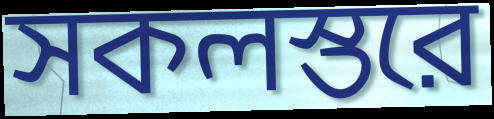
সকলস্তরে